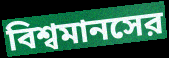
বিশ্বমানসের